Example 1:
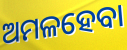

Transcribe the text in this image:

ଅମଳହେବା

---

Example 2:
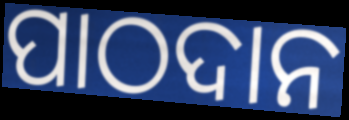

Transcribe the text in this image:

ପାଠଦାନ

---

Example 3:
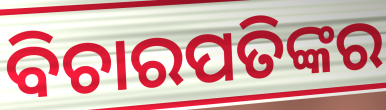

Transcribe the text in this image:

ବିଚାରପତିଙ୍କର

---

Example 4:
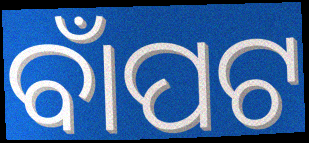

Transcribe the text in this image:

ବାଁପଟ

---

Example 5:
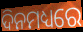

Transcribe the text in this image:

ଦିନମଧ୍ୟରେ